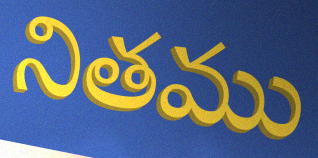
నితము